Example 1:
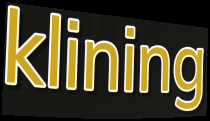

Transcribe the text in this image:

klining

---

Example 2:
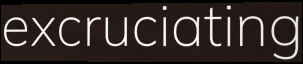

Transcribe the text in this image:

excruciating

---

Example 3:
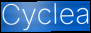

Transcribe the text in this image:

Cyclea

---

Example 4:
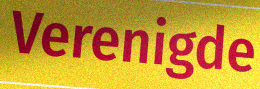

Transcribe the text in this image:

Verenigde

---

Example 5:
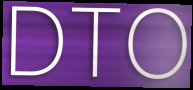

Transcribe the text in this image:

DTO